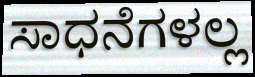
ಸಾಧನೆಗಳಲ್ಲ